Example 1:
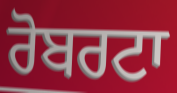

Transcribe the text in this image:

ਰੋਬਰਟਾ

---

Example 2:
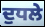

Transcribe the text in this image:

ਦੁਧਲੇ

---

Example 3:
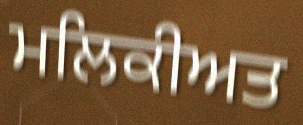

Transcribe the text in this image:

ਮਲਿਕੀਅਤ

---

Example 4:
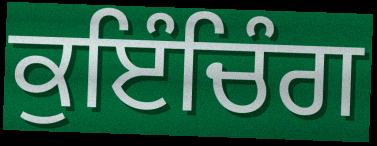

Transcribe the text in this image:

ਕੁਇੰਚਿੰਗ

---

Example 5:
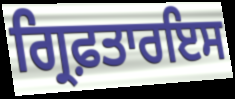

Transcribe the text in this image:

ਗ੍ਰਿਫ਼ਤਾਰਇਸ